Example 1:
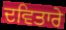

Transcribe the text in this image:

ਦਵਿਤਾਰੇ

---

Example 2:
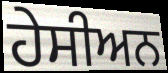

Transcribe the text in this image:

ਹੇਸੀਅਨ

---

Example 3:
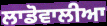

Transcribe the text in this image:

ਲਾਡੋਵਾਲੀਆ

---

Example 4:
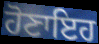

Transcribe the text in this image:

ਹੋਣਾਇਹ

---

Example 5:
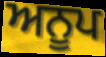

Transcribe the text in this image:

ਅਨੂਪ